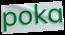
poka